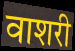
वाशरी